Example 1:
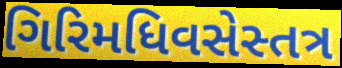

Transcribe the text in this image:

ગિરિમધિવસેસ્તત્ર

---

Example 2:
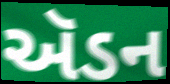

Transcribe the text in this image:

ઍડન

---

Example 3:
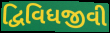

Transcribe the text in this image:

દ્વિવિધજીવી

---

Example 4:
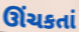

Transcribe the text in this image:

ઊંચકતાં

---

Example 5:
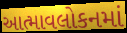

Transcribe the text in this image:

આત્માવલોકનમાં